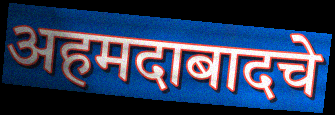
अहमदाबादचे